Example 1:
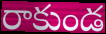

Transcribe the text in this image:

రాకుండ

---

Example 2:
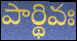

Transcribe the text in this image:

పార్థివః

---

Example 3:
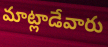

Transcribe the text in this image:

మాట్లాడేవారు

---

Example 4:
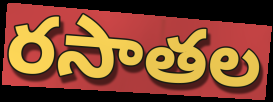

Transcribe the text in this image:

రసాతల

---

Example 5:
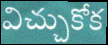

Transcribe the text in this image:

విచ్చుకోక